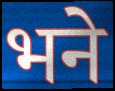
भने